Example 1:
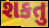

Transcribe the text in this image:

શકતુ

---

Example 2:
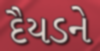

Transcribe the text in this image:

દૈયડને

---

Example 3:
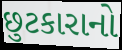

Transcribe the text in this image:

છુટકારાનો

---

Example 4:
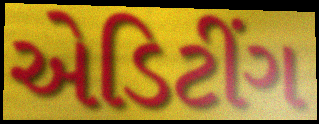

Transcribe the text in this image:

એડિટીંગ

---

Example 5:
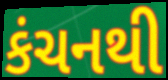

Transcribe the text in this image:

કંચનથી